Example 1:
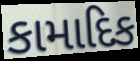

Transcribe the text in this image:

કામાદિક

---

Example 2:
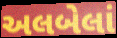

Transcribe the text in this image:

અલબેલાં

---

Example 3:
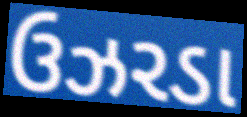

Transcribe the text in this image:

ઉઝરડા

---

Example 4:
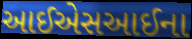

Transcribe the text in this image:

આઈએસઆઈના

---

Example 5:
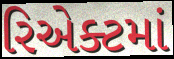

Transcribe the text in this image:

રિએક્ટમાં